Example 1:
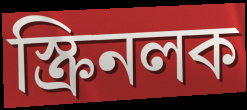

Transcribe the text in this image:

স্ক্রিনলক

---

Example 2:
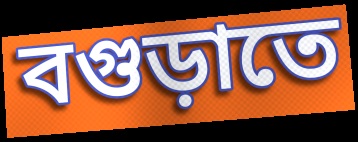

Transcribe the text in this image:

বগুড়াতে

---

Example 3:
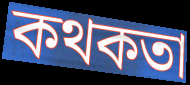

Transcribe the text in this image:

কথকতা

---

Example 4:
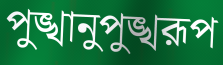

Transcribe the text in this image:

পুঙ্খানুপুঙ্খরূপ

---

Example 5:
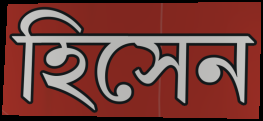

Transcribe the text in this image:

হিসেন